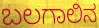
ಬಲಗಾಲಿನ